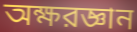
অক্ষরজ্ঞান